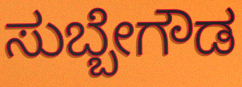
ಸುಬ್ಬೇಗೌಡ